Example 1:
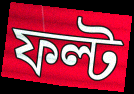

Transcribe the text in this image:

ফল্ট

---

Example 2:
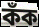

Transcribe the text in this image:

কঁক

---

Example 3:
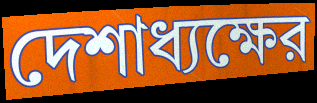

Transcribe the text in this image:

দেশাধ্যক্ষের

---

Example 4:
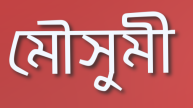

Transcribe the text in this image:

মৌসুমী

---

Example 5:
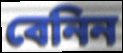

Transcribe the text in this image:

বেনিন